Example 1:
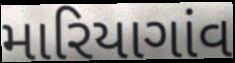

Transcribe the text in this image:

મારિયાગાંવ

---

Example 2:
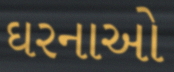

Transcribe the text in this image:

ઘરનાઓ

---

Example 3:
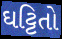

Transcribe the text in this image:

ઘટ્ટિતો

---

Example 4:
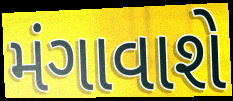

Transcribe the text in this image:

મંગાવાશે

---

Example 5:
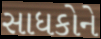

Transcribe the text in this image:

સાધકોને